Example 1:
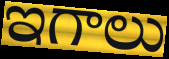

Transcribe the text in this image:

ఇగాలు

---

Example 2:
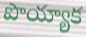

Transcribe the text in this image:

పొయ్యాక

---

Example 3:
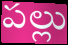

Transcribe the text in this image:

పల్లు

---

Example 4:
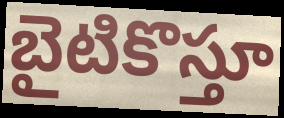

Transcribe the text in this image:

బైటికొస్తూ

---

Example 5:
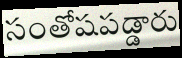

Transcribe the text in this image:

సంతోషపడ్డారు